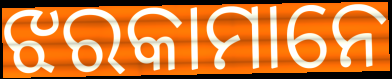
ଝରକାମାନେ